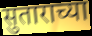
सुताराच्या